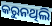
କରୁନଥିଲି